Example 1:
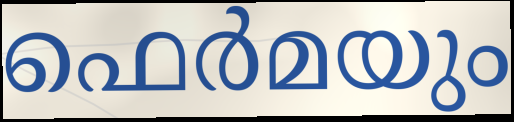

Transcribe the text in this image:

ഫെർമയും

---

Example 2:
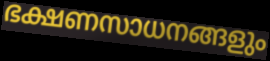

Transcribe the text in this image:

ഭക്ഷണസാധനങ്ങളും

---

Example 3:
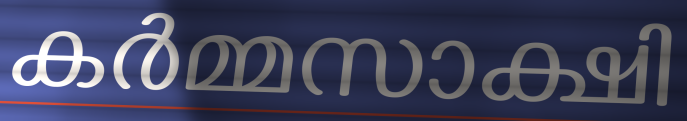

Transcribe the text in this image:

കർമ്മസാക്ഷി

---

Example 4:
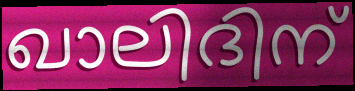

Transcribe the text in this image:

ഖാലിദിന്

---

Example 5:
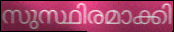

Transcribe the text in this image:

സുസ്ഥിരമാക്കി